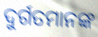
ଦୁର୍ଗତମାନଙ୍କ